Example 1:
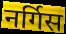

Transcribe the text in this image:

नर्गिस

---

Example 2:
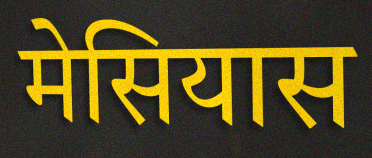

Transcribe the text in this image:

मेसियास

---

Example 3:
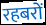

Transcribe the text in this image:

रहबरों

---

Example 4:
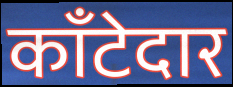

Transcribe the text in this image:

काँटेदार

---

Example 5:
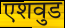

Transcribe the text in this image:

एशवुड